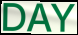
DAY